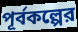
পূর্বকল্পের